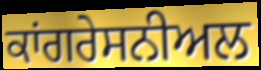
ਕਾਂਗਰੇਸਨੀਅਲ